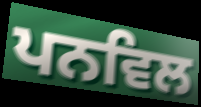
ਪਨਵਿਲ